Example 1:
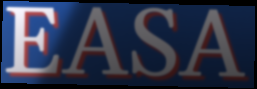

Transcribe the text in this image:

EASA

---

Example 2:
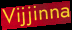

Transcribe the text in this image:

Vijjinna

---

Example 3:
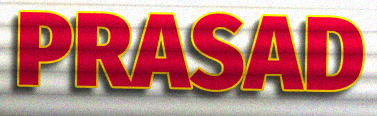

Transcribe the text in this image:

PRASAD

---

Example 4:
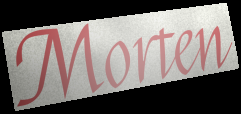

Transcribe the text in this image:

Morten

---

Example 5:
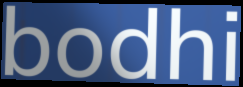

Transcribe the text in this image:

bodhi